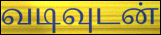
வடிவுடன்